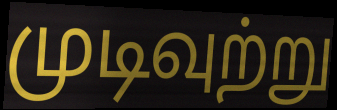
முடிவுற்று